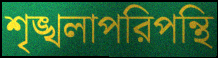
শৃঙ্খলাপরিপন্থি